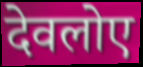
देवलोए